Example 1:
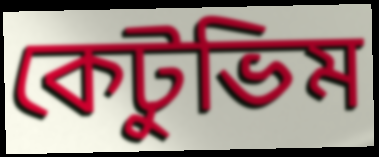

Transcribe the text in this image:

কেটুভিম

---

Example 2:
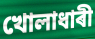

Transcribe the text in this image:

খোলাধাৰী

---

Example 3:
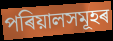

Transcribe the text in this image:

পৰিয়ালসমূহৰ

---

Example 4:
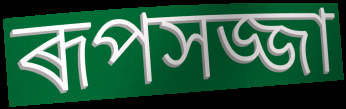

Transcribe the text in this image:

ৰূপসজ্জা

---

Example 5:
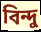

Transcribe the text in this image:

বিন্দু